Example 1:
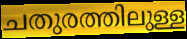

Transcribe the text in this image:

ചതുരത്തിലുള്ള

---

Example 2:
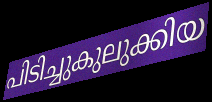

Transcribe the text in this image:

പിടിച്ചുകുലുക്കിയ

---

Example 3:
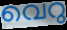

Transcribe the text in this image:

വെറു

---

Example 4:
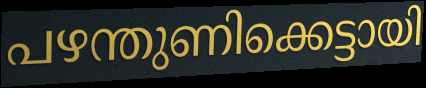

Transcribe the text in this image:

പഴന്തുണിക്കെട്ടായി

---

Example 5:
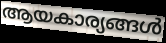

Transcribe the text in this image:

ആയകാര്യങ്ങൾ